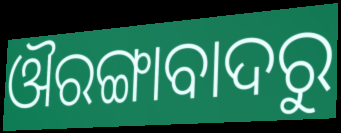
ଔରଙ୍ଗାବାଦରୁ